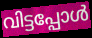
വിട്ടപ്പോൾ